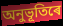
অনুভূতিৰে